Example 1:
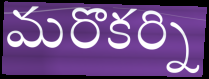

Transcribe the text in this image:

మరొకర్ని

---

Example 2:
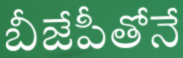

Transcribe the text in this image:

బీజేపీతోనే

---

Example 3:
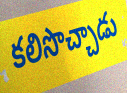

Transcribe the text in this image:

కలిసొచ్చాడు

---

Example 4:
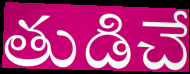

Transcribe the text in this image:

తుడిచే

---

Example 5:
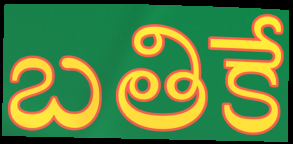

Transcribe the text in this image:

బతికే